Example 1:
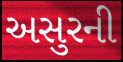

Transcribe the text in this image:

અસુરની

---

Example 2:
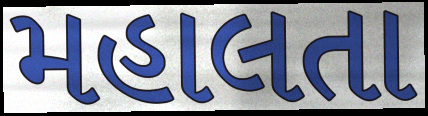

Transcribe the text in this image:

મહાલતા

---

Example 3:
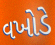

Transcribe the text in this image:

વખોડે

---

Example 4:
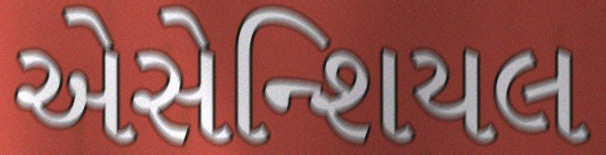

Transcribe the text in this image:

એસેન્શિયલ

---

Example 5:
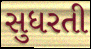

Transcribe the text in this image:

સુધરતી